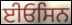
ਈਓਸਿਨ